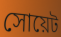
সোয়েট